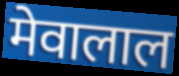
मेवालाल